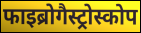
फाइब्रोगैस्ट्रोस्कोप